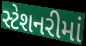
સ્ટેશનરીમાં